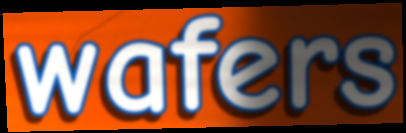
wafers